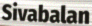
Sivabalan